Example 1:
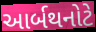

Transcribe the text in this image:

આર્બથનોટે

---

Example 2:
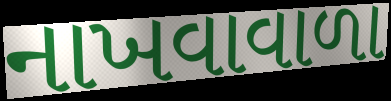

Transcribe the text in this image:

નાખવાવાળા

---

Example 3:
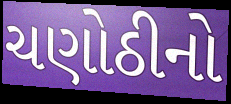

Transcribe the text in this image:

ચણોઠીનો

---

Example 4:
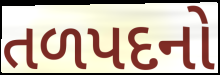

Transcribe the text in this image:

તળપદનો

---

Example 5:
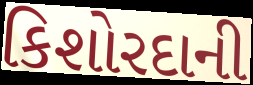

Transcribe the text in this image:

કિશોરદાની